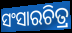
ସଂସାରଚିତ୍ର